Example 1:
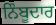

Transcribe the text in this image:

ਨਿੰਬੂਦਾਰ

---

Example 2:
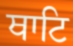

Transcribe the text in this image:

ਥਾਟਿ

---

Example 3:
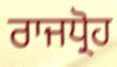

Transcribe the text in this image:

ਰਾਜਧ੍ਰੋਹ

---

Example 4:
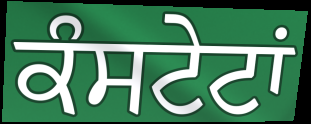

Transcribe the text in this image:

ਕੰਸਟੇਟਾਂ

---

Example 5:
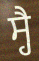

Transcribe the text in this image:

ਸ੍ਹੈ